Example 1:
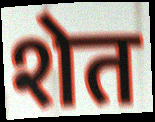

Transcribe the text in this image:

शेत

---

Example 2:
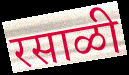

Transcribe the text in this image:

रसाळी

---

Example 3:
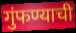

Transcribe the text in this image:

गुंफण्याची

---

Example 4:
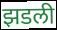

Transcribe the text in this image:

झडली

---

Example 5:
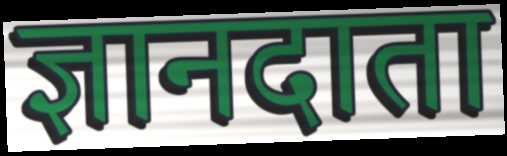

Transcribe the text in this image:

ज्ञानदाता